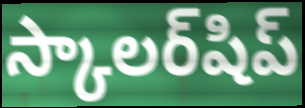
స్కాలర్‌షిప్